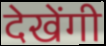
देखेंगी